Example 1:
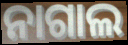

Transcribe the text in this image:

ନାଗାଲ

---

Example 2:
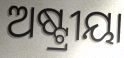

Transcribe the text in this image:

ଅଷ୍ଟ୍ରୀୟା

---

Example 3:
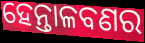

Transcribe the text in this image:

ହେନ୍ତାଳବଣର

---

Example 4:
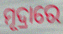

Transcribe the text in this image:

ମୂଦ୍ରାରେ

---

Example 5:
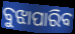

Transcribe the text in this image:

ବୁଝାପାରିବ